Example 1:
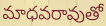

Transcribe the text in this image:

మాధవరావుతో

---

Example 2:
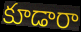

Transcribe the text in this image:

కూడారా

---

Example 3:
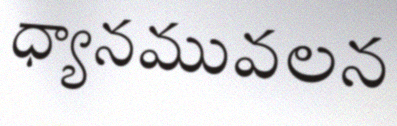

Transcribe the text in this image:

ధ్యానమువలన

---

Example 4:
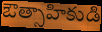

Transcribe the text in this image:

ఔత్సాహికుడి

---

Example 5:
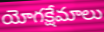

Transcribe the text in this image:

యోగక్షేమాలు